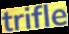
trifle